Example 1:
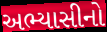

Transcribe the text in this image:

અભ્યાસીનો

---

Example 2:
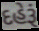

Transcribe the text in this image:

દહેરૂં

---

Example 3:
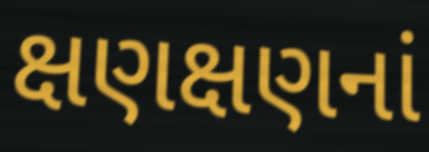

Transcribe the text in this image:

ક્ષણક્ષણનાં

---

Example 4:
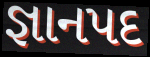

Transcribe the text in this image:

જ્ઞાનપદ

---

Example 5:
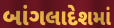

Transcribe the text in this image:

બાંગલાદેશમાં